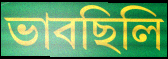
ভাবছিলি